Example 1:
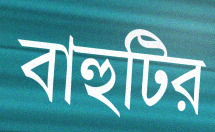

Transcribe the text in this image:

বাহুটির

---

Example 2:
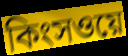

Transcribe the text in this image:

কিংসওয়ে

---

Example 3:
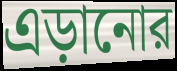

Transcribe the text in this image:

এড়ানোর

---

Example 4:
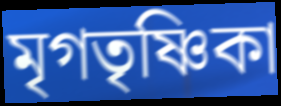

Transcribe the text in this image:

মৃগতৃষ্ণিকা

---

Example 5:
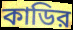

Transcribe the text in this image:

কাডির